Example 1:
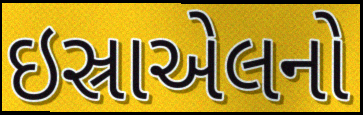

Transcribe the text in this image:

ઇસ્રાએલનો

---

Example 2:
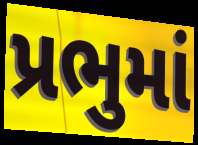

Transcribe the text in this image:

પ્રભુમાં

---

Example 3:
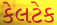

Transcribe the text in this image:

કેલટેક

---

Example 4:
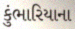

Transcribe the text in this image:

કુંભારિયાના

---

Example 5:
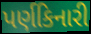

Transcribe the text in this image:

પર્ણકિનારી